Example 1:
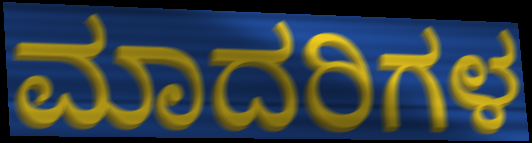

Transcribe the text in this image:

ಮಾದರಿಗಳ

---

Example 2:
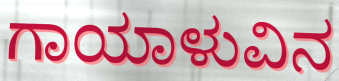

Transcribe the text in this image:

ಗಾಯಾಳುವಿನ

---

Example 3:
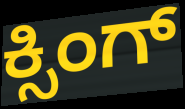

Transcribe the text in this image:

ಕ್ಸಿಂಗ್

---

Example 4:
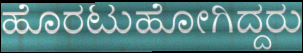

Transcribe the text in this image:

ಹೊರಟುಹೋಗಿದ್ದರು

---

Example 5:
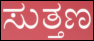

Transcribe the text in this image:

ಸುತ್ತಣ